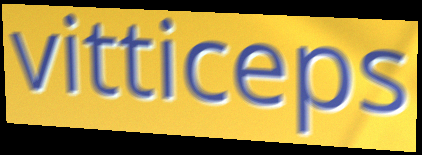
vitticeps